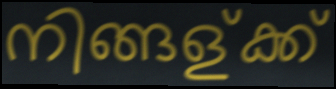
നിങ്ങള്ക്ക്